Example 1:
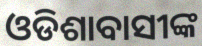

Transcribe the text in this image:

ଓଡିଶାବାସୀଙ୍କ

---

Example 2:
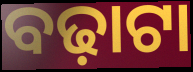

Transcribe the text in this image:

ବଢ଼ାଟା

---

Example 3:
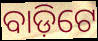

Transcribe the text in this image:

ବାଡ଼ିଟେ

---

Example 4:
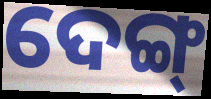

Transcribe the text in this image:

ଦେଙ୍ଗ୍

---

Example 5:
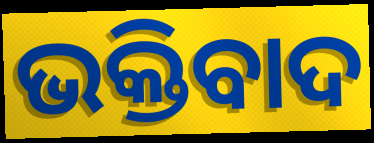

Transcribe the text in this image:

ଭକ୍ତିବାଦ